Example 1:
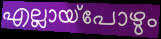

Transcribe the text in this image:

എല്ലായ്‌പോഴും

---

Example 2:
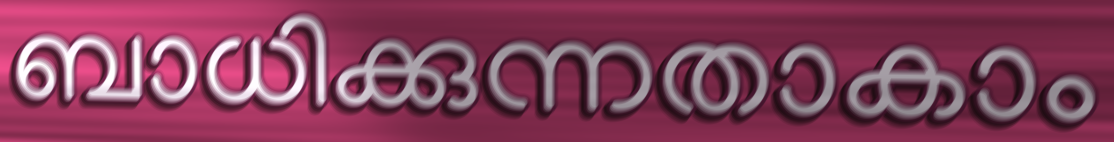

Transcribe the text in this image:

ബാധിക്കുന്നതാകാം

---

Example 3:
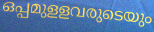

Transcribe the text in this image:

ഒപ്പമുളളവരുടെയും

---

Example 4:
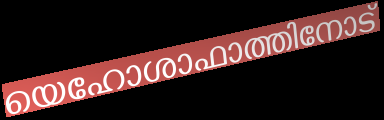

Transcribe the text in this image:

യെഹോശാഫാത്തിനോട്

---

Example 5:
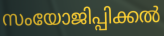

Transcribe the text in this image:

സംയോജിപ്പിക്കൽ